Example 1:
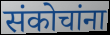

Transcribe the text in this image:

संकोचांना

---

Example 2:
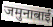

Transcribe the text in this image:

जमुनाबाई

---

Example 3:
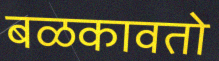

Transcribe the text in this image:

बळकावतो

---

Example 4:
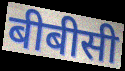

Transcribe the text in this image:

बीबीसी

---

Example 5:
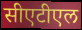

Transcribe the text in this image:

सीएटीएल